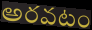
అరవటం